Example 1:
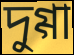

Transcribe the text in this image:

দুগ্গা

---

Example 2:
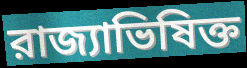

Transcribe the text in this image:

রাজ্যাভিষিক্ত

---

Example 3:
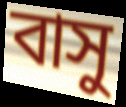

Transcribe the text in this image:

বাসু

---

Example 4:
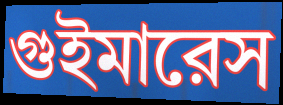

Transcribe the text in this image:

গুইমারেস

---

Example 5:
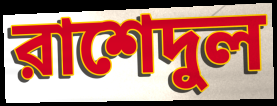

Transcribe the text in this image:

রাশেদুল